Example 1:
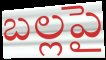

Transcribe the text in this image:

బల్లపై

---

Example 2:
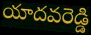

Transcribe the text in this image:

యాదవరెడ్డి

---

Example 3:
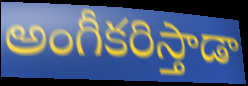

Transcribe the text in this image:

అంగీకరిస్తాడా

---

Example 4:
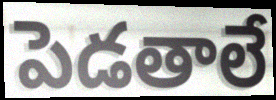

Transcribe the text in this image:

పెడతాలే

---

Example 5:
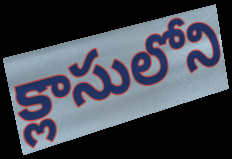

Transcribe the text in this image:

క్లాసులోని